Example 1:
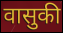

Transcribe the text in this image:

वासुकी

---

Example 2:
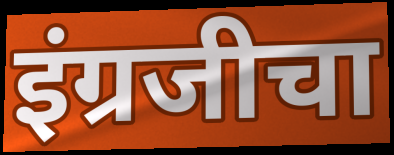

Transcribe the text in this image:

इंग्रजीचा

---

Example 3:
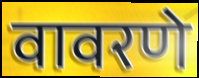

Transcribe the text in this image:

वावरणे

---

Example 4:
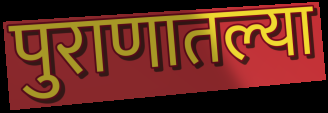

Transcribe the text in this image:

पुराणातल्या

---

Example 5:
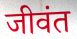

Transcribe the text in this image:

जीवंत